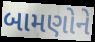
બામણોને